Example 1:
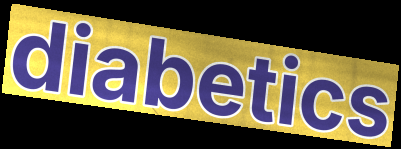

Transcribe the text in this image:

diabetics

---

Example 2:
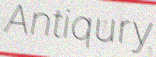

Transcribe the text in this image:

Antiqury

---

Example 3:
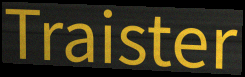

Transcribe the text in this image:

Traister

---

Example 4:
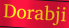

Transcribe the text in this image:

Dorabji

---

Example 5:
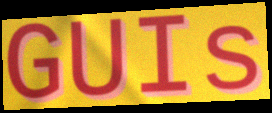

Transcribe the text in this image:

GUIs